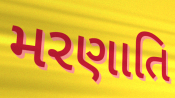
મરણાતિ